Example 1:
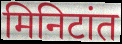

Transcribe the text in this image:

मिनिटांत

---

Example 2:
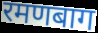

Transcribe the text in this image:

रमणबाग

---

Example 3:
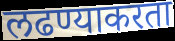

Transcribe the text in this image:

लढण्याकरता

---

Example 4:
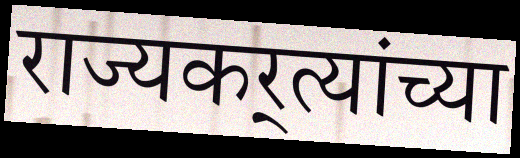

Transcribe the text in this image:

राज्यकर्त्यांच्या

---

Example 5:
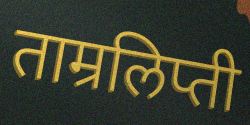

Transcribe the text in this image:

ताम्रलिप्ती